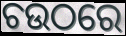
ଚଉଠରେ